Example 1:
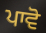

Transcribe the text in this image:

ਪਾਵੋ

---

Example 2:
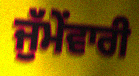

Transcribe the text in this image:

ਜੁੱਮੇਂਵਾਰੀ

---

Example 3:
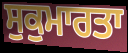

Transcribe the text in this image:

ਸੁਕੁਮਾਰਤਾ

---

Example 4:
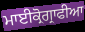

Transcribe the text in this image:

ਮਾਈਕ੍ਰੋਗ੍ਰਾਫੀਆ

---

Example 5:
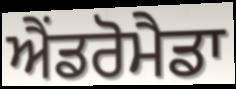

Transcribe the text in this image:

ਐਂਡਰੋਮੈਡਾ